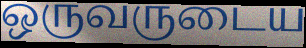
ஒருவருடைய